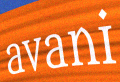
avani